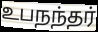
உபநந்தர்